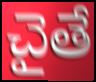
చైతే